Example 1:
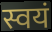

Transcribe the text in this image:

स्वयं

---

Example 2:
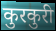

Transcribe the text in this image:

कुरकुरी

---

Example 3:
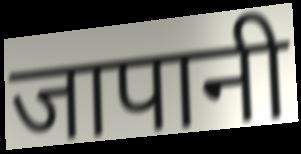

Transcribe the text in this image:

जापानी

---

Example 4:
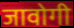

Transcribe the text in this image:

जावोगी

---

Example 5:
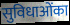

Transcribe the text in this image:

सुविधाओंका